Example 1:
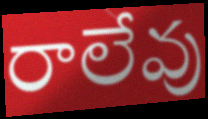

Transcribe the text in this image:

రాలేవు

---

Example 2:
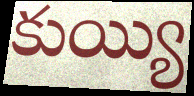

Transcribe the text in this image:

కుయ్యి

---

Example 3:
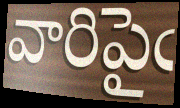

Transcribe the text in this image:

వారిపైఁ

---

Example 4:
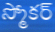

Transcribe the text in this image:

స్మోకర్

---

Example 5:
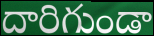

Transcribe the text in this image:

దారిగుండా